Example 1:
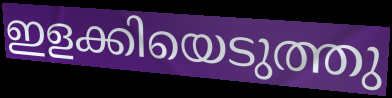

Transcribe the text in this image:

ഇളക്കിയെടുത്തു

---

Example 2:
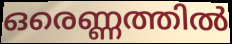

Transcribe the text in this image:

ഒരെണ്ണത്തിൽ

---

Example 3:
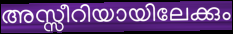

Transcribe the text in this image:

അസ്സീറിയായിലേക്കും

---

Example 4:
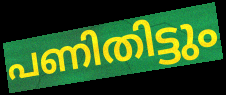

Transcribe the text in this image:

പണിതിട്ടും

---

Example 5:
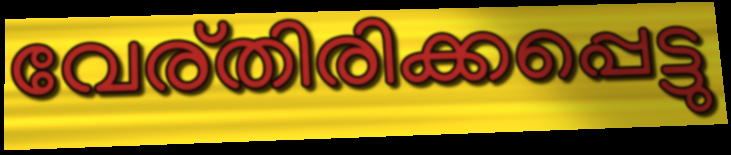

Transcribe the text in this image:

വേര്തിരിക്കപ്പെട്ടു